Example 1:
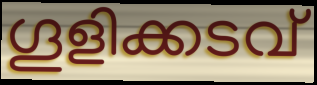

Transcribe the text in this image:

ഗൂളിക്കടവ്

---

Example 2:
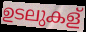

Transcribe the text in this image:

ഉടലുകള്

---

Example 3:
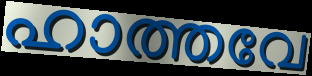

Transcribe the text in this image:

ഹാത്തവേ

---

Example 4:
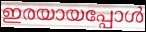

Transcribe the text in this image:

ഇരയായപ്പോൾ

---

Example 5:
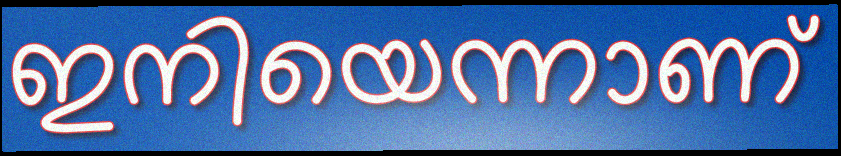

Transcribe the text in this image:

ഇനിയെന്നാണ്